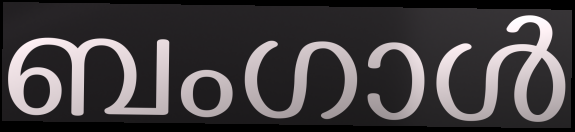
ബംഗാൾ